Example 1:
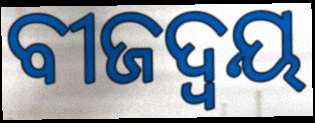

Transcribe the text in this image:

ବୀଜଦ୍ଵୟ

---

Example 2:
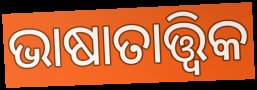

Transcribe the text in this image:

ଭାଷାତାତ୍ତ୍ୱିକ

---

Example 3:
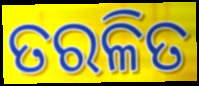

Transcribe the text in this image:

ତରଳିତ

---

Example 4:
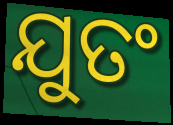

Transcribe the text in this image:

ଯୁତଂ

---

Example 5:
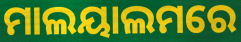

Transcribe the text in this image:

ମାଲୟାଲମରେ